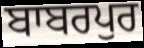
ਬਾਬਰਪੁਰ